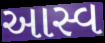
આસ્વ